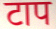
टाप